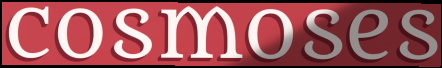
cosmoses